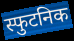
स्फुटनिक